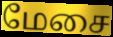
மேசை